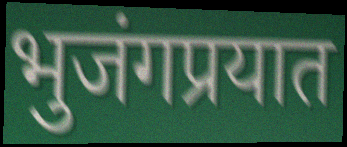
भुजंगप्रयात